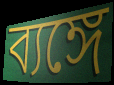
ব্যঙ্গে